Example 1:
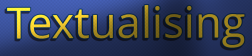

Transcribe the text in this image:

Textualising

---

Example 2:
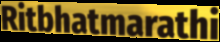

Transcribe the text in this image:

Ritbhatmarathi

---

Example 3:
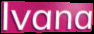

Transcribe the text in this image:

Ivana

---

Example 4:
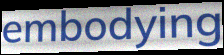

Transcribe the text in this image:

embodying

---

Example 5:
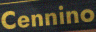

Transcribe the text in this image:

Cennino